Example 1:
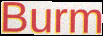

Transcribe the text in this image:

Burm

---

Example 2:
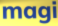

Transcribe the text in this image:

magi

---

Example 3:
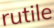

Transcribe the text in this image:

rutile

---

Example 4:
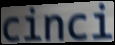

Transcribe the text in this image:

cinci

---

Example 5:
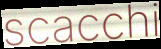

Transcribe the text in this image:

scacchi